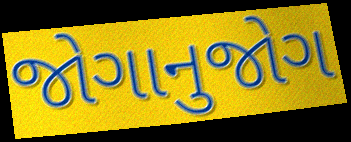
જોગાનુજોગ